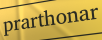
prarthonar